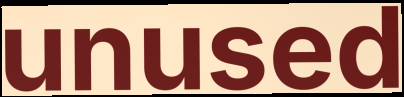
unused